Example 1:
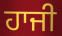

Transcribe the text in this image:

ਹਾਜੀ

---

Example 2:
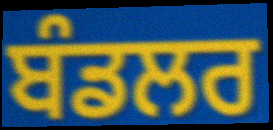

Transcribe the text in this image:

ਬੰਡਲਰ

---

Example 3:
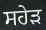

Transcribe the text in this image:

ਸਹੇੜ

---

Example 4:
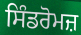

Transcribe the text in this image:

ਸਿੰਡਰੋਮਜ਼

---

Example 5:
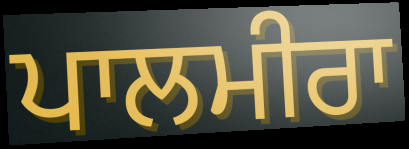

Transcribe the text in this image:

ਪਾਲਮੀਰਾ